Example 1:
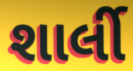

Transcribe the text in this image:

શાર્લી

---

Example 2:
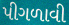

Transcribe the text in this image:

પીગળાવી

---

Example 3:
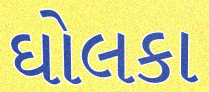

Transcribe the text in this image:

ઘોલકા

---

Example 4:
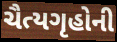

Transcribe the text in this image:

ચૈત્યગૃહોની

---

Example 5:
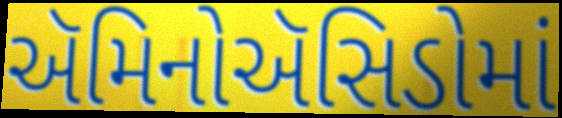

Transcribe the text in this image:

ઍમિનોઍસિડોમાં